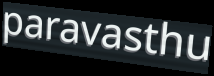
paravasthu